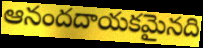
ఆనందదాయకమైనది